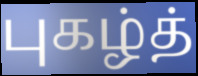
புகழ்த்